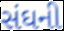
સંઘની